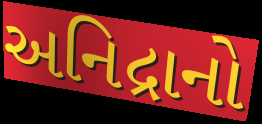
અનિદ્રાનો